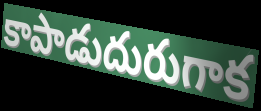
కాపాడుదురుగాక